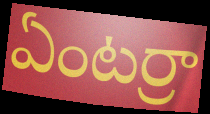
ఏంటర్రా